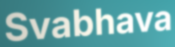
Svabhava